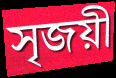
সৃজয়ী